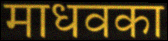
माधवका